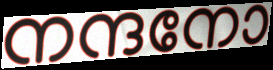
നന്ദനോ